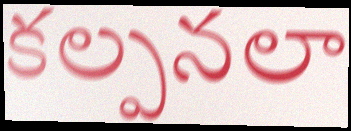
కల్పనలా